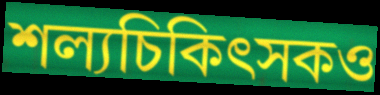
শল্যচিকিৎসকও